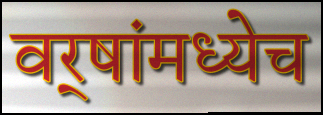
वर्षांमध्येच